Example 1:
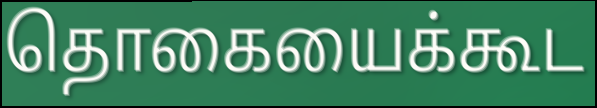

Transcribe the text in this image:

தொகையைக்கூட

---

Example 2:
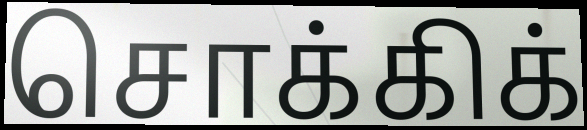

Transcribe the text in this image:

சொக்கிக்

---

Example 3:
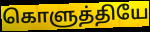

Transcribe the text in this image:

கொளுத்தியே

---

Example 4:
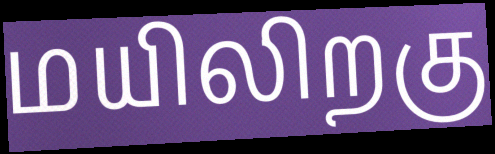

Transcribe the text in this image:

மயிலிறகு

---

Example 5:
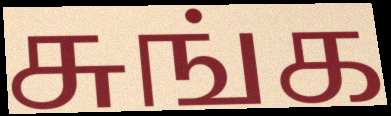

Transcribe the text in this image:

சுங்க